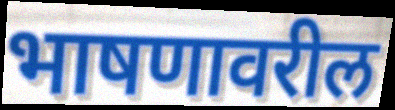
भाषणावरील